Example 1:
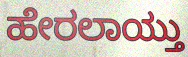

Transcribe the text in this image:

ಹೇರಲಾಯ್ತು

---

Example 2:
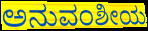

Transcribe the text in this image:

ಅನುವಂಶೀಯ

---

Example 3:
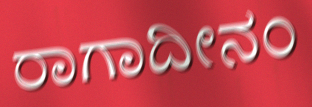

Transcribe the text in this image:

ರಾಗಾದೀನಂ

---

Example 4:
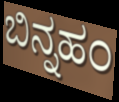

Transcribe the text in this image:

ಬಿನ್ನಹಂ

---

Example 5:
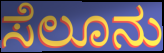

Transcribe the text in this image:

ಸೆಲೂನು